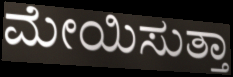
ಮೇಯಿಸುತ್ತಾ